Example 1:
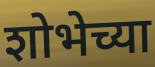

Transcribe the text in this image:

शोभेच्या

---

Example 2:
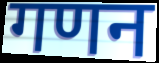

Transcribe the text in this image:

गणन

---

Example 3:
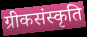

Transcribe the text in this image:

ग्रीकसंस्कृति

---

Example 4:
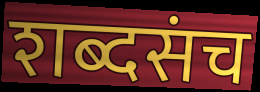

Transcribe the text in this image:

शब्दसंच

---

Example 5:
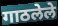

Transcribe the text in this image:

गाठलेले